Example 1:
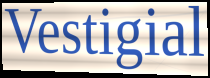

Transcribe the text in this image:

Vestigial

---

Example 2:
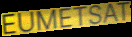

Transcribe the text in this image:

EUMETSAT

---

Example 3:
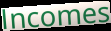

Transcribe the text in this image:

Incomes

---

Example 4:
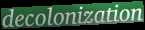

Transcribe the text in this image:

decolonization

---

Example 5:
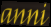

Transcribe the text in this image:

anni